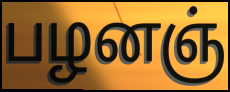
பழனஞ்